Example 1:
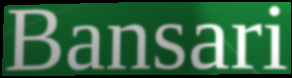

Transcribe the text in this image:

Bansari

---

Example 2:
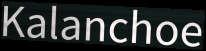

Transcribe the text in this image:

Kalanchoe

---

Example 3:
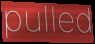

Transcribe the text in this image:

pulled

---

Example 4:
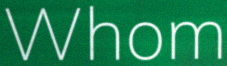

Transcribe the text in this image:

Whom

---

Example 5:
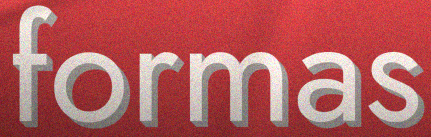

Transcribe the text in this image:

formas